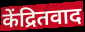
केंद्रितवाद